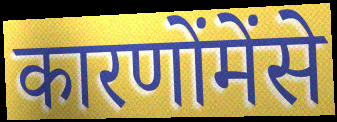
कारणोंमेंसे